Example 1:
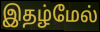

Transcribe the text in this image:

இதழ்மேல்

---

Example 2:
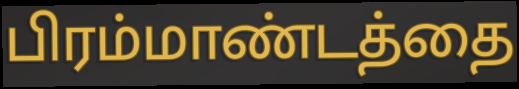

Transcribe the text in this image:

பிரம்மாண்டத்தை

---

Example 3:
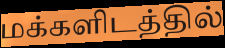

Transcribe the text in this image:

மக்களிடத்தில்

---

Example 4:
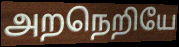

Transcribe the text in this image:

அறநெறியே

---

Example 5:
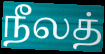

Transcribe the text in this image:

நீலத்